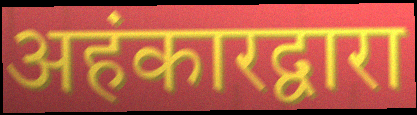
अहंकारद्वारा